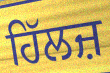
ਹਿੱਲਜ਼